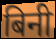
बिनी